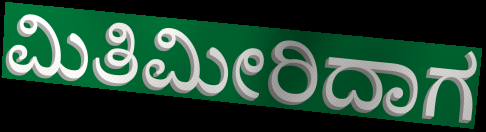
ಮಿತಿಮೀರಿದಾಗ